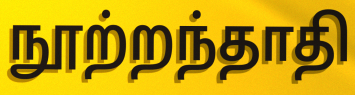
நூற்றந்தாதி